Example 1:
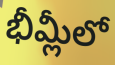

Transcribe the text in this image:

భీమ్లీలో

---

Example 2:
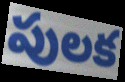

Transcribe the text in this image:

పులక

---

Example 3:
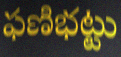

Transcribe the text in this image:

ఫణిభట్టు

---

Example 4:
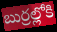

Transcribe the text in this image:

బుర్రల్లోకి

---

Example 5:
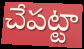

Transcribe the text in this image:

చేపట్టా